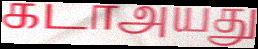
கடாஅயது